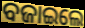
ବଜାଇଲେ